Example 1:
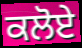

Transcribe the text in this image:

ਕਲੋਏ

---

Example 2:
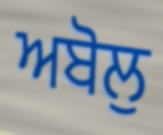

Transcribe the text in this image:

ਅਬੋਲੁ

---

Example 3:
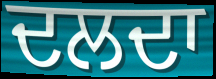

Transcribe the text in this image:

ਦਲਦਾ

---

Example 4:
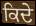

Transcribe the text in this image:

ਕਿਦੇ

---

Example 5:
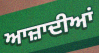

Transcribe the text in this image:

ਆਜ਼ਾਦੀਆਂ